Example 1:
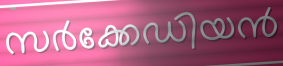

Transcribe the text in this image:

സർക്കേഡിയൻ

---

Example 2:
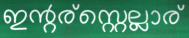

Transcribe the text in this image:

ഇന്റര്സ്റ്റെല്ലാര്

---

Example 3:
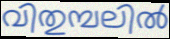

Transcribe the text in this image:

വിതുമ്പലിൽ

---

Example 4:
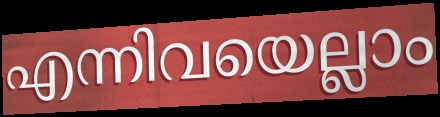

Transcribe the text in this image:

എന്നിവയെല്ലാം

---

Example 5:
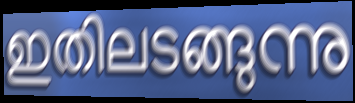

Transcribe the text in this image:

ഇതിലടങ്ങുന്നു